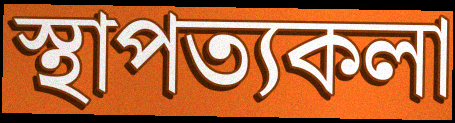
স্থাপত্যকলা